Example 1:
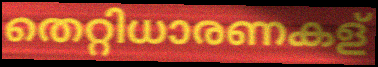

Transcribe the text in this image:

തെറ്റിധാരണകള്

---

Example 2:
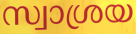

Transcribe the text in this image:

സ്വാശ്രയ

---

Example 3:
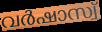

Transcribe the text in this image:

വർഷാസ്വ്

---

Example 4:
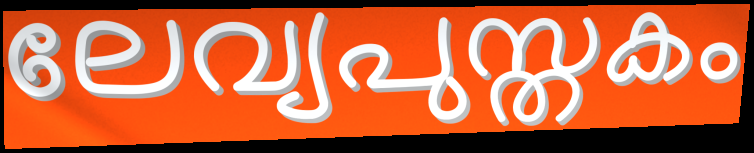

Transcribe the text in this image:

ലേവ്യപുസ്തകം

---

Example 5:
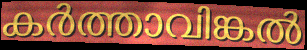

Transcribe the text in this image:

കർത്താവിങ്കൽ